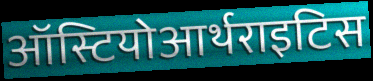
ऑस्टियोआर्थराइटिस